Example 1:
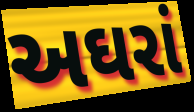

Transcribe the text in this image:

અઘરાં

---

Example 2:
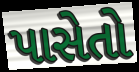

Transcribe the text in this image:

પાસેતો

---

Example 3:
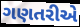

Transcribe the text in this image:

ગણતરીએ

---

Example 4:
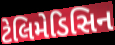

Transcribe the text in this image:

ટેલિમેડિસિન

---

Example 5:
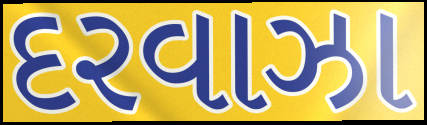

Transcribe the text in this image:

દરવાઝા